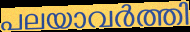
പലയാവർത്തി